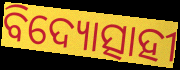
ବିଦ୍ୟୋତ୍ସାହୀ